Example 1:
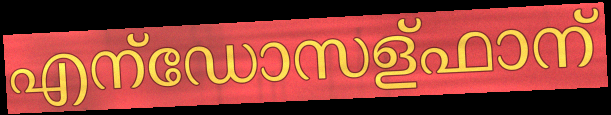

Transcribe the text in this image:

എന്ഡോസള്ഫാന്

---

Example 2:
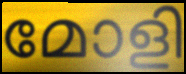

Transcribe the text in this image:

മോളി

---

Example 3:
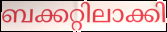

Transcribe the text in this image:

ബക്കറ്റിലാക്കി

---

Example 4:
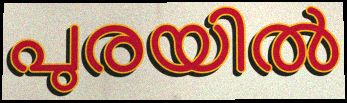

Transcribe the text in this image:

പുരയിൽ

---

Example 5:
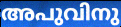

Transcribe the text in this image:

അപുവിനു